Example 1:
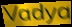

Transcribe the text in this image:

Vadya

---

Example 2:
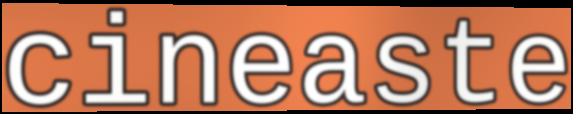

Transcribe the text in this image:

cineaste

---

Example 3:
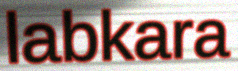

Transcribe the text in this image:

labkara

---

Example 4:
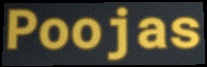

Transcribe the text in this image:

Poojas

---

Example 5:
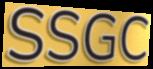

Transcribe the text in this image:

SSGC